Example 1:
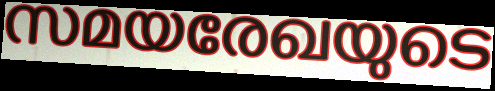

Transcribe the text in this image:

സമയരേഖയുടെ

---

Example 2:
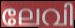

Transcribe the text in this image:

ലേവി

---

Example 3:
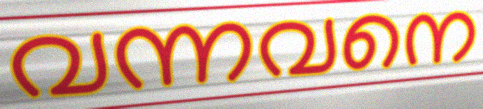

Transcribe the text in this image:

വന്നവനെ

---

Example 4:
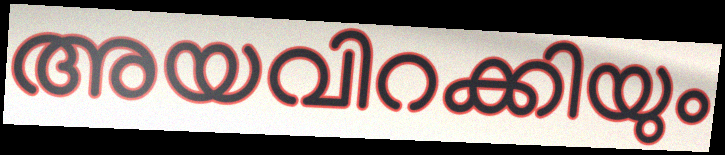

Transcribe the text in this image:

അയവിറക്കിയും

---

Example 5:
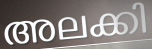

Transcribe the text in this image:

അലക്കി